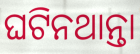
ଘଟିନଥାନ୍ତା